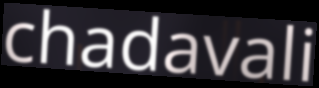
chadavali